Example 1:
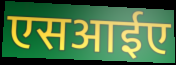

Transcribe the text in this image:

एसआईए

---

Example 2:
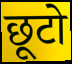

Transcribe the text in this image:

छूटो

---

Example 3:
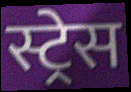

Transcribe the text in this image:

स्ट्रेस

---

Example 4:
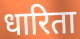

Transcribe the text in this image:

धारिता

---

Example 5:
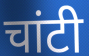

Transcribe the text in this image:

चांटी